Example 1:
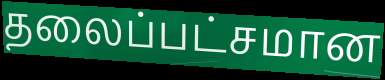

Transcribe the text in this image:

தலைப்பட்சமான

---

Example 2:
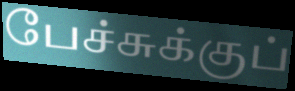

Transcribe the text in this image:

பேச்சுக்குப்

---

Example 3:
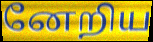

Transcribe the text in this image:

னேறிய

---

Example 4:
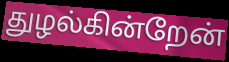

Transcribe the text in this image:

துழல்கின்றேன்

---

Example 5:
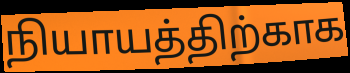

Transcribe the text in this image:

நியாயத்திற்காக